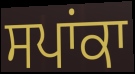
ਸਪਾਂਕਾ